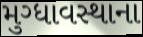
મુગ્ધાવસ્થાના